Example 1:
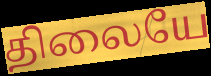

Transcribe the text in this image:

திலையே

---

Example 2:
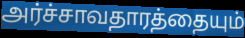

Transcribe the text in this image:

அர்ச்சாவதாரத்தையும்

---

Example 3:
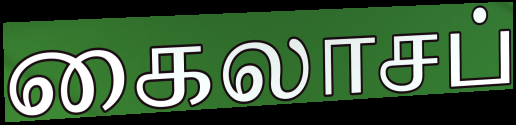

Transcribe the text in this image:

கைலாசப்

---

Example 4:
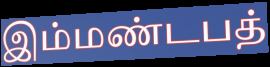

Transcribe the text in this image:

இம்மண்டபத்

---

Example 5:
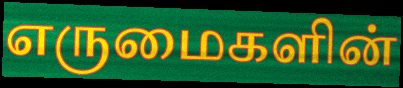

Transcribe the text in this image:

எருமைகளின்